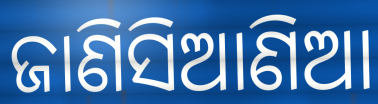
ଜାଣିସିଆଣିଆ